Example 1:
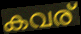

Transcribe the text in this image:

കവര്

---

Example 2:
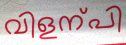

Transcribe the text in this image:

വിളന്പി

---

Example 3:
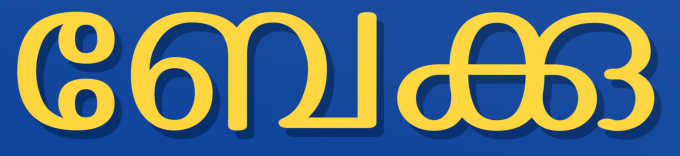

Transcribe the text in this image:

ബേക്കു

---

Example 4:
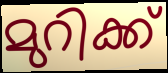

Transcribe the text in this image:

മുറിക്ക്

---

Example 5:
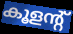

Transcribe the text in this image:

കൂളന്റ്